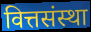
वित्तसंस्था